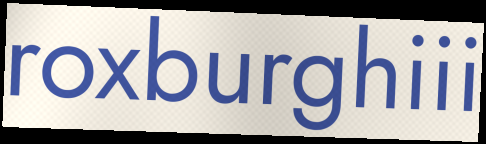
roxburghiii